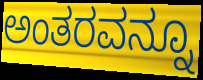
ಅಂತರವನ್ನೂ